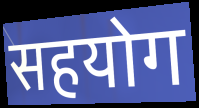
सहयोग